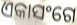
ଏକାସଂଗେ